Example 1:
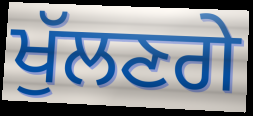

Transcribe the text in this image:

ਖੁੱਲਣਗੇ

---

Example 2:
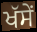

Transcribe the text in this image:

ਖੱਸੇਂ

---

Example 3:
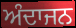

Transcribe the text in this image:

ਅੰਦਾਜਨ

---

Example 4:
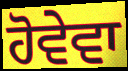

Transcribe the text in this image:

ਹੋਵੇਵਾ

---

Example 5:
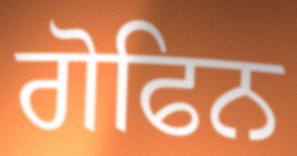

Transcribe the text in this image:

ਗੋਫਿਨ